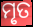
ମୃତ